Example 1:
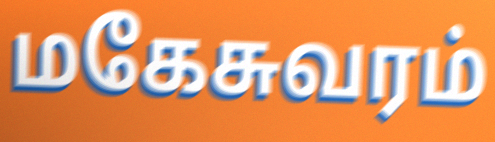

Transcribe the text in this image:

மகேசுவரம்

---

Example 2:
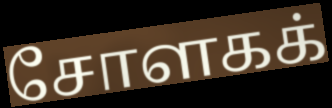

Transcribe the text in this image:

சோளகக்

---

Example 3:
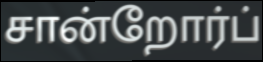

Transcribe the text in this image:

சான்றோர்ப்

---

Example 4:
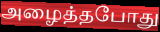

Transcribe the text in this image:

அழைத்தபோது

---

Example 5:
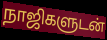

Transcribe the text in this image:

நாஜிகளுடன்